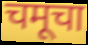
चमूचा